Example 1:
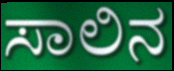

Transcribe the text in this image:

ಸಾಲಿನ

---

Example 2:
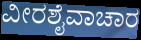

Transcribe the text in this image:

ವೀರಶೈವಾಚಾರ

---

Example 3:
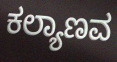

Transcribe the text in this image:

ಕಲ್ಯಾಣವ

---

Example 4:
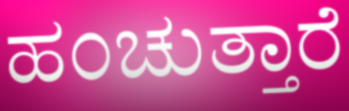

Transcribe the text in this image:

ಹಂಚುತ್ತಾರೆ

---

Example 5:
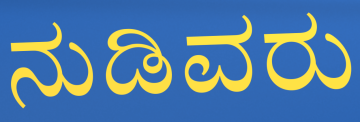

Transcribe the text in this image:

ನುಡಿವರು